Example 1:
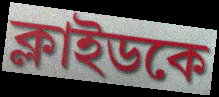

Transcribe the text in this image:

ক্লাইডকে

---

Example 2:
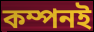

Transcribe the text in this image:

কম্পনই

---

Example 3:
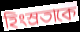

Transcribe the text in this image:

হিংস্রতাকে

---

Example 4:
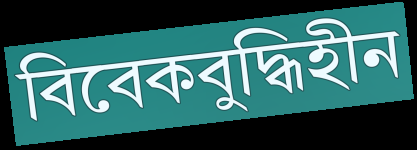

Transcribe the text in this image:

বিবেকবুদ্ধিহীন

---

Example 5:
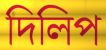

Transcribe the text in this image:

দিলিপ